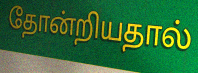
தோன்றியதால்